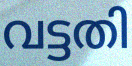
വട്ടതി